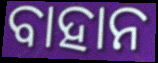
ବାହାନ